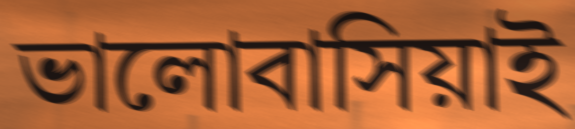
ভালোবাসিয়াই